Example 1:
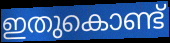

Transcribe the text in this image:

ഇതുകൊണ്ട്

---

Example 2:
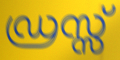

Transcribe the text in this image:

ഡ്രസ്സ്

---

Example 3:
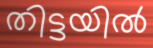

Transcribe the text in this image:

തിട്ടയിൽ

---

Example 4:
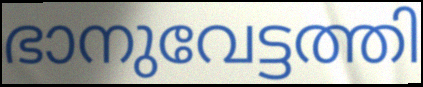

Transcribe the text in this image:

ഭാനുവേട്ടത്തി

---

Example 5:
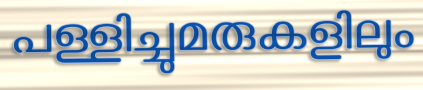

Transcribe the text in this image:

പള്ളിച്ചുമരുകളിലും